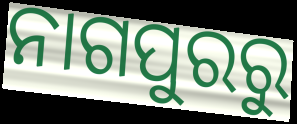
ନାଗପୁରରୁ